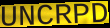
UNCRPD